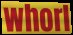
whorl